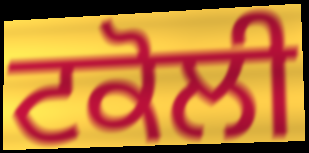
ਟਕੋਲੀ